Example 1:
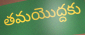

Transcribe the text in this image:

తమయొద్దకు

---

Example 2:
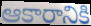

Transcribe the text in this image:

ఆకారానికి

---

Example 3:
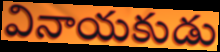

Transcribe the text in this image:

వినాయకుడు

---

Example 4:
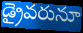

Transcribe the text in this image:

డ్రైవరునూ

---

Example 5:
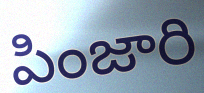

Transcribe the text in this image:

పింజారి